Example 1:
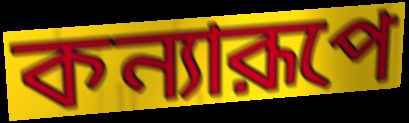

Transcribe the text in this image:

কন্যারূপে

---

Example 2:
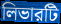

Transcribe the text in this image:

লিভারটি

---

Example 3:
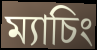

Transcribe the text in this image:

ম্যাচিং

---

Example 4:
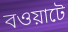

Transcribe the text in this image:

বওয়াটে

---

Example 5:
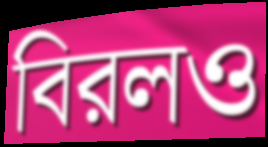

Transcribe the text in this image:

বিরলও